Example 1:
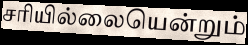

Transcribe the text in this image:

சரியில்லையென்றும்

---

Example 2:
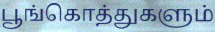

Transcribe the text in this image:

பூங்கொத்துகளும்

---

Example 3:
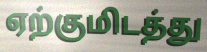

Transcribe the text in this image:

ஏற்குமிடத்து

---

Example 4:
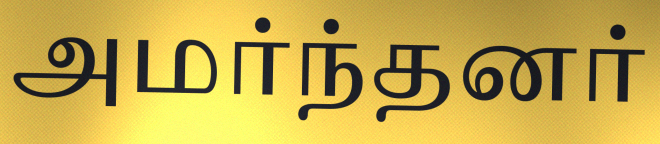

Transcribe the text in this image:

அமர்ந்தனர்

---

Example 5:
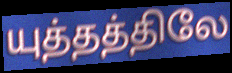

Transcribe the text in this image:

யுத்தத்திலே